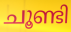
ചൂണ്ടി